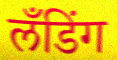
लँडिंग